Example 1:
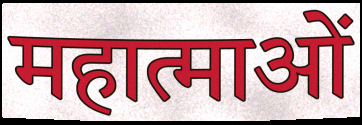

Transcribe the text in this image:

महात्‍माओं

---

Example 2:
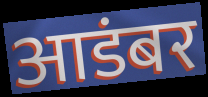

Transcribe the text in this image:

आडंबर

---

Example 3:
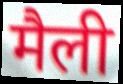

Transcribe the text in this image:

मैली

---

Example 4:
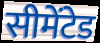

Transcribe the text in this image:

सीमेंटेड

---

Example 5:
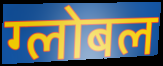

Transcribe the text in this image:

ग्लोबल